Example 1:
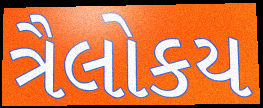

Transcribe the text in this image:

ત્રૈલોકય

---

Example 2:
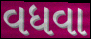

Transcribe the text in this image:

વધવા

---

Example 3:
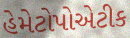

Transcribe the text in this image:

હેમેટોપોએટીક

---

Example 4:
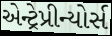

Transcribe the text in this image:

એન્ટ્રેપ્રીન્યોર્સ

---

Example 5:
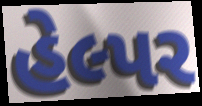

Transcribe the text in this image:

હેલ્પર